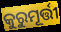
କୁରୁମୂର୍ତ୍ତୀ